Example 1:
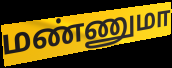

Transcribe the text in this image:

மண்ணுமா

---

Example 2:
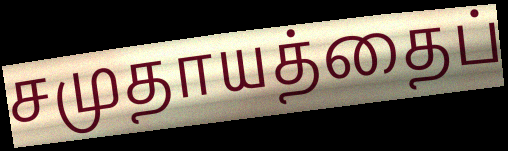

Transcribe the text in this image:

சமுதாயத்தைப்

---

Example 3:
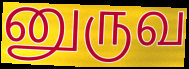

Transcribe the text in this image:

னுருவ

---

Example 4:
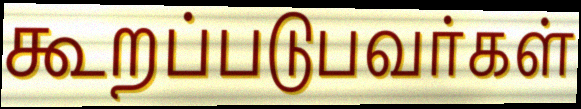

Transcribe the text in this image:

கூறப்படுபவர்கள்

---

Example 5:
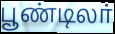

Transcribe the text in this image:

பூண்டிலர்